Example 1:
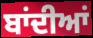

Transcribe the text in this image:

ਬਾਂਦੀਆਂ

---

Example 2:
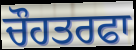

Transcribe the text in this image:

ਚੌਹਤਰਫਾ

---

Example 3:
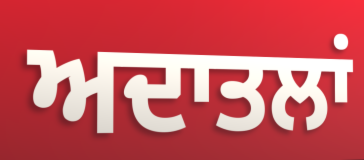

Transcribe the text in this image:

ਅਦਾਤਲਾਂ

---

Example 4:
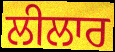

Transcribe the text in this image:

ਲੀਲਾਰ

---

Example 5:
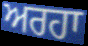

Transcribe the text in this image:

ਅਰਹਾ